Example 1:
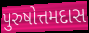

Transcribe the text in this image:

પુરુષોત્તમદાસ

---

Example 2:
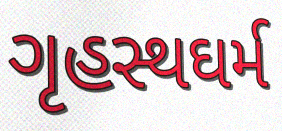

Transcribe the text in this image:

ગૃહસ્થઘર્મ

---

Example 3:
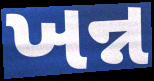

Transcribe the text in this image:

ખન્ન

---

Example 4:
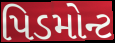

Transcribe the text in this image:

પિડમોન્ટ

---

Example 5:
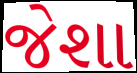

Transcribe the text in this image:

જેશા